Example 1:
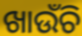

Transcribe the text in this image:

ଖାଉଁଚି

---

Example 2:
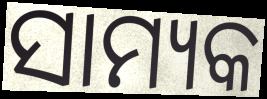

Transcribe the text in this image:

ସାମ୍ୟକ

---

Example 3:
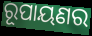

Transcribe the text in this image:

ରୂପାୟଣର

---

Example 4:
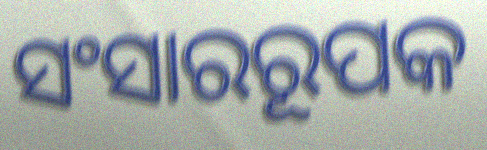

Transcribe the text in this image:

ସଂସାରରୂପକ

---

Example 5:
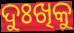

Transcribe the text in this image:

ଦୁଃଖିକୁ